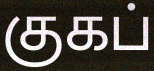
குகப்